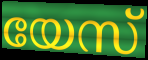
യേസ്